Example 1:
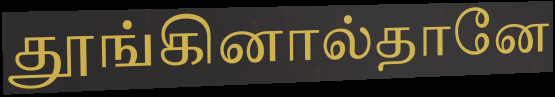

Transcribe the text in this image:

தூங்கினால்தானே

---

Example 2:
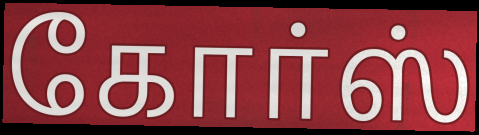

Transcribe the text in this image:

கோர்ஸ்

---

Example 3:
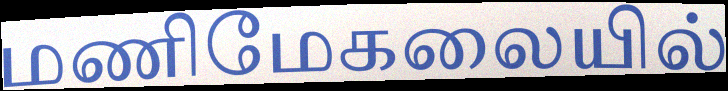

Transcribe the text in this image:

மணிமேகலையில்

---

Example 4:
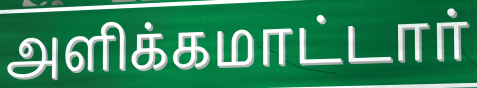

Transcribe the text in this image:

அளிக்கமாட்டார்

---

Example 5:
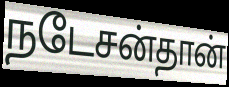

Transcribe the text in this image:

நடேசன்தான்